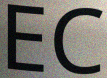
EC